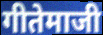
गीतेमाजी